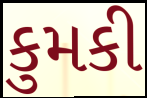
કુમકી